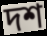
দশ